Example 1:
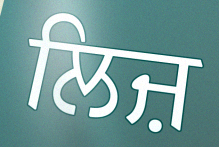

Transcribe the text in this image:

ਲਿਜ਼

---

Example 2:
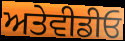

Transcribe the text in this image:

ਅਤੇਵੀਡੀਓ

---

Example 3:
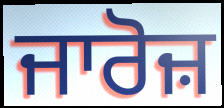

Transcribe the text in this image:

ਜਾਰੋਜ਼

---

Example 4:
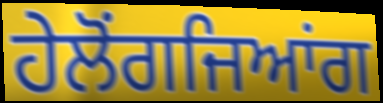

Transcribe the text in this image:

ਹੇਲੋਂਗਜਿਆਂਗ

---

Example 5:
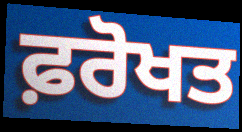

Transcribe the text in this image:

ਫ਼ਰੋਖਤ